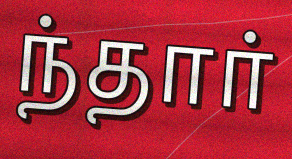
ந்தார்